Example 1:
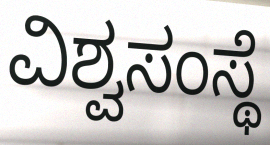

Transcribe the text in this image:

ವಿಶ್ವಸಂಸ್ಥೆ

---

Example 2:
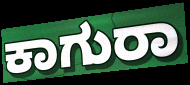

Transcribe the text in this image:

ಕಾಗುರಾ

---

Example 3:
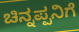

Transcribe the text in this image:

ಚಿನ್ನಪ್ಪನಿಗೆ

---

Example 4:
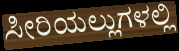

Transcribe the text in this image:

ಸೀರಿಯಲ್ಲುಗಳಲ್ಲಿ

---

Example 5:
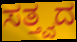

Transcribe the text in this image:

ಸತ್ತ್ವದ